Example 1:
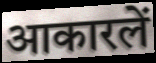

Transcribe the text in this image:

आकारलें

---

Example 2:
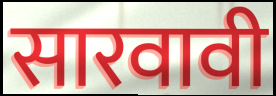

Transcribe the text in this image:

सारवावी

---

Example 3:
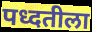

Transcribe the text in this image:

पध्दतीला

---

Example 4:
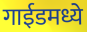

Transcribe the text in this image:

गाईडमध्ये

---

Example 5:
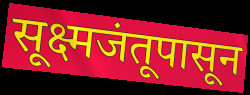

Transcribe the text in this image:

सूक्ष्मजंतूपासून